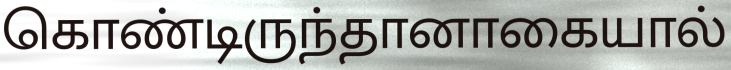
கொண்டிருந்தானாகையால்